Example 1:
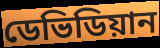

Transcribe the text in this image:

ডেভিডিয়ান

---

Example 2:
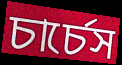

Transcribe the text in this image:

চার্চেস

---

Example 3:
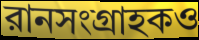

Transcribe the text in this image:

রানসংগ্রাহকও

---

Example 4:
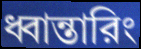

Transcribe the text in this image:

ধ্বান্তারিং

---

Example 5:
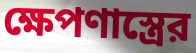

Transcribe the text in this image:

ক্ষেপণাস্ত্রের